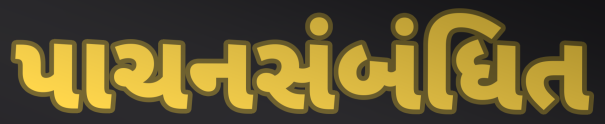
પાચનસંબંધિત